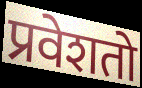
प्रवेशतो